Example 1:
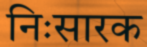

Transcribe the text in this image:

निःसारक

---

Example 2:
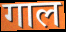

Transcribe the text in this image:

गाल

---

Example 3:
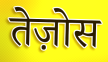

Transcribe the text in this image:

तेज़ोस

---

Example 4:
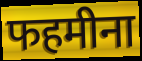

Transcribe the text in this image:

फहमीना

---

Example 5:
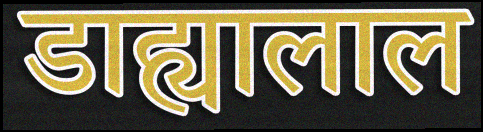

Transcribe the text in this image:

डाह्यालाल